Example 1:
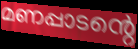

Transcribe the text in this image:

മണപ്പാടന്റെ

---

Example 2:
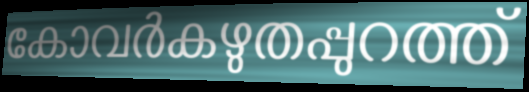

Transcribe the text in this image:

കോവർകഴുതപ്പുറത്ത്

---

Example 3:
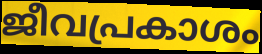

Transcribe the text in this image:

ജീവപ്രകാശം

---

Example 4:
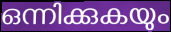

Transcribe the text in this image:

ഒന്നിക്കുകയും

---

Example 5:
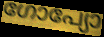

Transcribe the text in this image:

ഗോപ്യോ